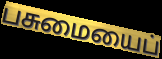
பசுமையைப்